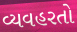
વ્યવહરતો